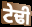
ਟੇਢੀ